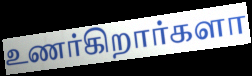
உணர்கிறார்களா